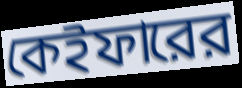
কেইফারের